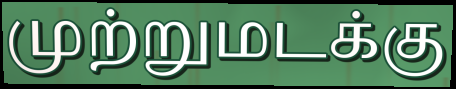
முற்றுமடக்கு